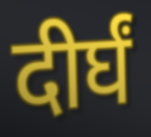
दीर्घं